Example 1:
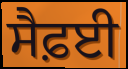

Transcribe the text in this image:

ਸੈਫ਼ਈ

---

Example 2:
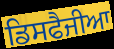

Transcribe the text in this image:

ਡਿਸਫੈਜੀਆ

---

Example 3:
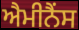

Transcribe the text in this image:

ਐਮੀਨੈਂਸ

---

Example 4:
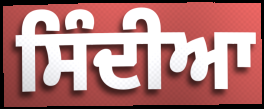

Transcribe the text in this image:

ਸਿੰਦੀਆ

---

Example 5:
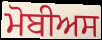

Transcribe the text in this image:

ਮੋਬੀਅਸ